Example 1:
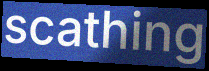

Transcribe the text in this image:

scathing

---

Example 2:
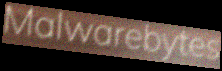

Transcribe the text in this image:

Malwarebytes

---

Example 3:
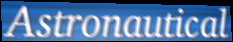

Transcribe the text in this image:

Astronautical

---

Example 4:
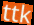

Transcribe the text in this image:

ttk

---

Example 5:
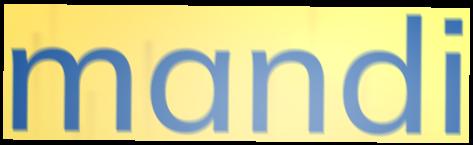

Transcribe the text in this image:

mandi